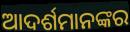
ଆଦର୍ଶମାନଙ୍କର